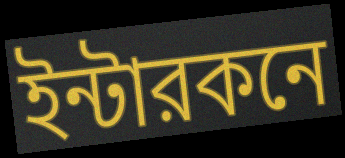
ইন্টারকনে